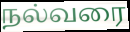
நல்வரை